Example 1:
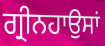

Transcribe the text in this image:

ਗ੍ਰੀਨਹਾਉਸਾਂ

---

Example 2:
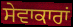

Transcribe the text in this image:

ਸੇਵਾਕਾਰਾਂ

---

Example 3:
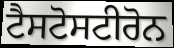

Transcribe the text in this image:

ਟੈਸਟੋਸਟੀਰੋਨ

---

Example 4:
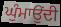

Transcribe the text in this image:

ਘੁੰਮਾਉਂਦੀ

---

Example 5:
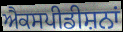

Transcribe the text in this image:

ਐਕਸਪੀਡੀਸ਼ਨਾਂ